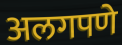
अलगपणे